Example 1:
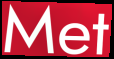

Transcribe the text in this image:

Met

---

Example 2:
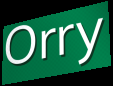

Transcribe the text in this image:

Orry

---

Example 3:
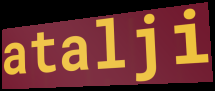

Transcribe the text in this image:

atalji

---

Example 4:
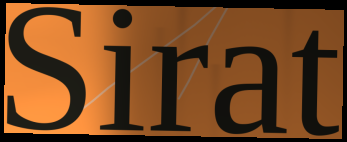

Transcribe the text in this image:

Sirat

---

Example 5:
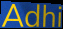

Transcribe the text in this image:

Adhi